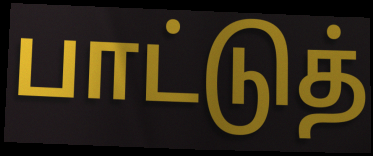
பாட்டுத்